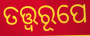
ତତ୍ତ୍ୱରୂପେ